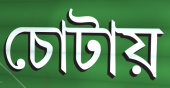
চোটায়